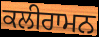
ਕਲੀਰਾਮਨ